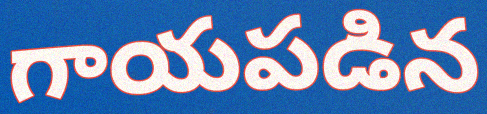
గాయపడిన